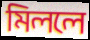
মিললে